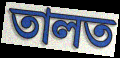
তালত